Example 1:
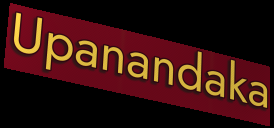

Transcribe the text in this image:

Upanandaka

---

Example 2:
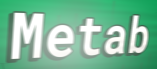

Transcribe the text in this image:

Metab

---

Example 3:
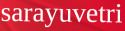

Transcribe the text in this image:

sarayuvetri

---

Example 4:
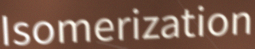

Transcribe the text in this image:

Isomerization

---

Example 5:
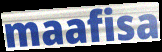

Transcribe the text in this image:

maafisa